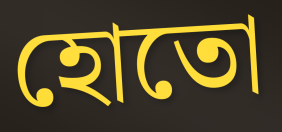
হোতো